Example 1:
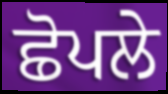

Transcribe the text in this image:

ਛੋਪਲੇ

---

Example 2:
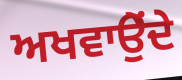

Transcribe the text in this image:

ਅਖਵਾਉੇਂਦੇ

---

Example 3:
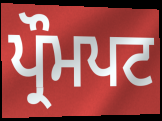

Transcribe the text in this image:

ਪ੍ਰੌਮਪਟ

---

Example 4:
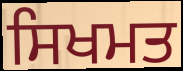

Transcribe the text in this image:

ਸਿਖਮਤ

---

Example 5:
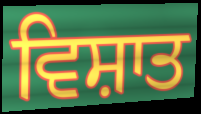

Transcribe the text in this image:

ਵਿਸ਼ਾਤ